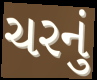
ચરનું